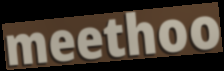
meethoo